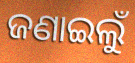
ଜଣାଇଲୁଁ